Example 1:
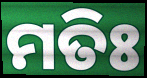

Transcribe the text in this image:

ମତିଃ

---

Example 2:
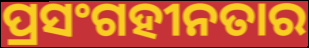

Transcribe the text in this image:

ପ୍ରସଂଗହୀନତାର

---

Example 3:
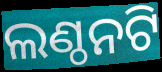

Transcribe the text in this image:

ଲଣ୍ଠନଟି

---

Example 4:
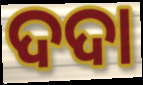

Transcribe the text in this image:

ଦଦା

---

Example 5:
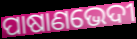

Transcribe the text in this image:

ପାଷାଣଭେଦୀ